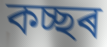
কচ্ছৰ